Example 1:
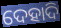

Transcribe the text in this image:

ଦେହାଦି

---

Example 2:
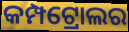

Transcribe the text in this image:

କମ୍ପଟ୍ରୋଲର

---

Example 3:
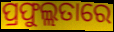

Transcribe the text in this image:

ପ୍ରଫୁଲ୍ଲତାରେ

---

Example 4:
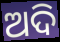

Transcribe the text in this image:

ଅଦି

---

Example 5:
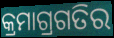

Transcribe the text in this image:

କ୍ରମାଗ୍ରଗତିର